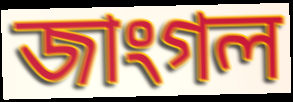
জাংগল